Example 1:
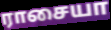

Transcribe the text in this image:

ராசையா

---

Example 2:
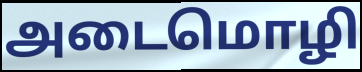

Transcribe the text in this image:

அடைமொழி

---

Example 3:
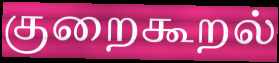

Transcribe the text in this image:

குறைகூறல்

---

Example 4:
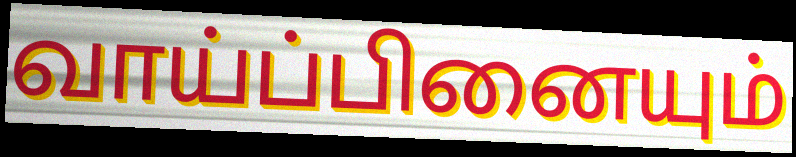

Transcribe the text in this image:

வாய்ப்பினையும்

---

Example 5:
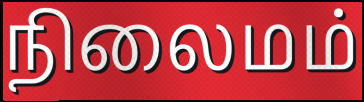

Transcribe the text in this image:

நிலைமம்